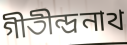
গীতীন্দ্রনাথ